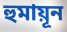
হুমায়ূন